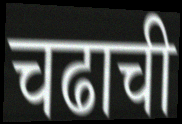
चढाची